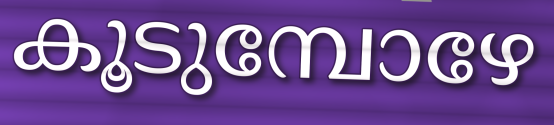
കൂടുമ്പോഴേ